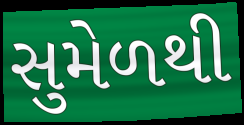
સુમેળથી